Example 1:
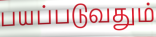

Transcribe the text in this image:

பயப்படுவதும்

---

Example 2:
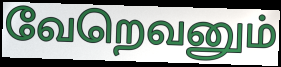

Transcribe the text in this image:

வேறெவனும்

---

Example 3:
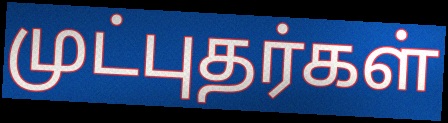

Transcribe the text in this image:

முட்புதர்கள்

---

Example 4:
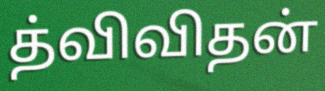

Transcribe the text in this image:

த்விவிதன்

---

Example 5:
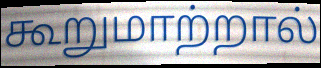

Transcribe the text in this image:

கூறுமாற்றால்